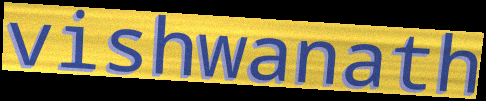
vishwanath